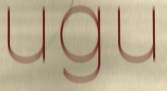
ugu